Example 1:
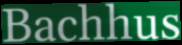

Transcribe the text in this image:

Bachhus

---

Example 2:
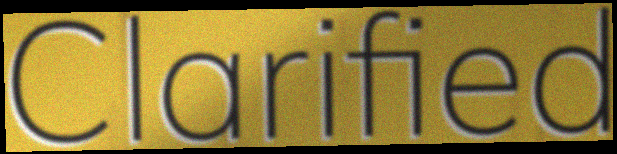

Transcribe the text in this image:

Clarified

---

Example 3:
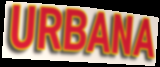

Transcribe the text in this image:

URBANA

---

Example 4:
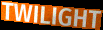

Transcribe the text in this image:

TWILIGHT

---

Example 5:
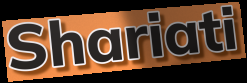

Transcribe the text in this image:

Shariati